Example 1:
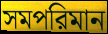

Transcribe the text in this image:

সমপরিমান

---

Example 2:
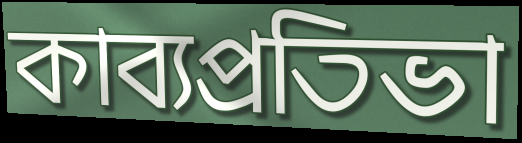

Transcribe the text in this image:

কাব্যপ্রতিভা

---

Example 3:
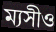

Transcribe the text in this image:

ম্যসীও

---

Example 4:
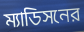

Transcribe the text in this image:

ম্যাডিসনের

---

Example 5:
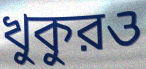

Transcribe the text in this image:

খুকুরও